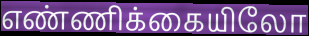
எண்ணிக்கையிலோ